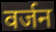
वर्जन